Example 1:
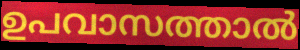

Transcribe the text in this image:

ഉപവാസത്താൽ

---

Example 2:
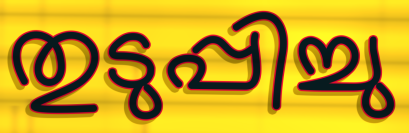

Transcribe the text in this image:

തുടുപ്പിച്ചു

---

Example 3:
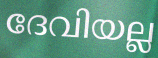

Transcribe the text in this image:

ദേവിയല്ല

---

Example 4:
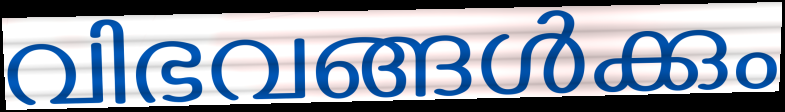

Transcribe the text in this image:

വിഭവങ്ങൾക്കും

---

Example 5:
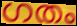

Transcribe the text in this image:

ഗതം